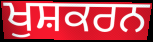
ਖੁਸ਼ਕਰਨ